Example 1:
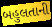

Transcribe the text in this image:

બહુલતાની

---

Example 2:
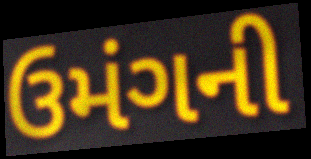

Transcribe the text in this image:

ઉમંગની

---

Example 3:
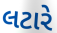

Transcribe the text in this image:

લટારે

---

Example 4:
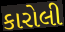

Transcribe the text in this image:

કારોલી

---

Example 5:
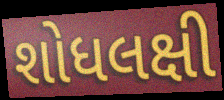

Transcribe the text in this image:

શોધલક્ષી